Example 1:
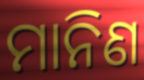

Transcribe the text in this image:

ମାନିଣ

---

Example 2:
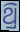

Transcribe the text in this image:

ଥ୍ରି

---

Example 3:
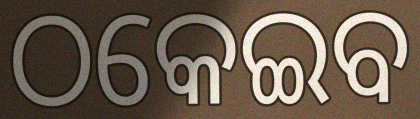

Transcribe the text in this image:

ଠକେଇବ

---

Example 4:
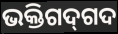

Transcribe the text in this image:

ଭକ୍ତିଗଦ୍‌ଗଦ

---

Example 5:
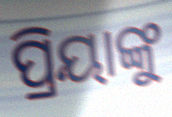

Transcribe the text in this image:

ପ୍ରିୟାଙ୍କୁ